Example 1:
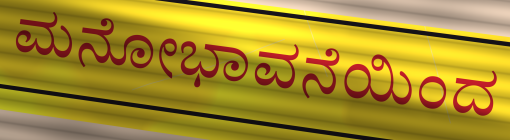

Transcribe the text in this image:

ಮನೋಭಾವನೆಯಿಂದ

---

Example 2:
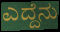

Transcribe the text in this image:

ಎದ್ದೆನು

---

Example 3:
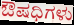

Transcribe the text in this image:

ಔಷಧಿಗಳು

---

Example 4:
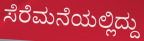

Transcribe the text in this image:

ಸೆರೆಮನೆಯಲ್ಲಿದ್ದು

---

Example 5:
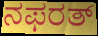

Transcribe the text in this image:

ನಫರತ್